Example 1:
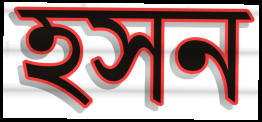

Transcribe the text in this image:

হসন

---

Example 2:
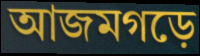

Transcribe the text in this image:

আজমগড়ে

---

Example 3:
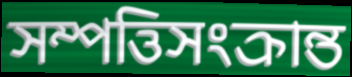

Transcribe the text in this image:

সম্পত্তিসংক্রান্ত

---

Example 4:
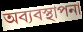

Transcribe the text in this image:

অব্যবস্থাপনা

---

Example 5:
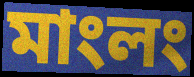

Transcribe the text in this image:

মাংলং